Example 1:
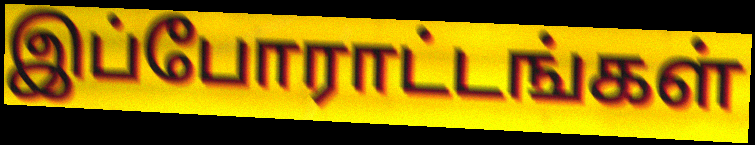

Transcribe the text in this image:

இப்போராட்டங்கள்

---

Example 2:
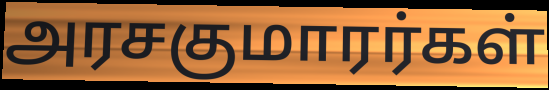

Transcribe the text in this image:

அரசகுமாரர்கள்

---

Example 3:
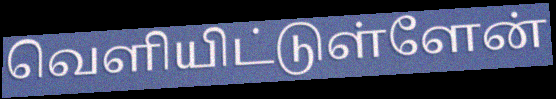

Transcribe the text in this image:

வெளியிட்டுள்ளேன்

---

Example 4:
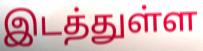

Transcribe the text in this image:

இடத்துள்ள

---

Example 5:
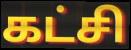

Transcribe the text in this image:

கட்சி